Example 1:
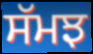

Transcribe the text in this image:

ਸੱਮਝ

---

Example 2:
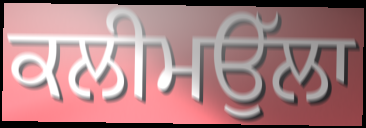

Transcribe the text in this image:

ਕਲੀਮਉੱਲਾ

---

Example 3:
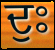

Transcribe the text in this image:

ਦੁਃ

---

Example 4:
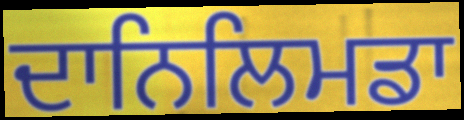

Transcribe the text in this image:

ਦਾਨਿਲਿਮਡਾ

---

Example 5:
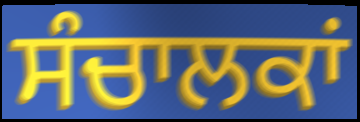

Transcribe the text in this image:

ਸੰਚਾਲਕਾਂ